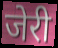
जेरी